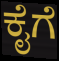
ಕೈಗೆ